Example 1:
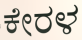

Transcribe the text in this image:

ಕೇರಳ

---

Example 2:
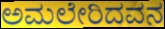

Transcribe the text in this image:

ಅಮಲೇರಿದವನ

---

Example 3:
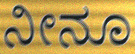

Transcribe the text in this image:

ನೀನೂ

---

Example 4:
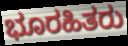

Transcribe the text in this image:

ಭೂರಹಿತರು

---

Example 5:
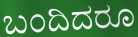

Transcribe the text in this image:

ಬಂದಿದರೂ